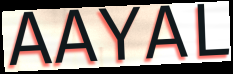
AAYAL